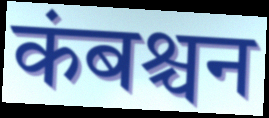
कंबश्चन